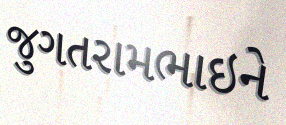
જુગતરામભાઇને